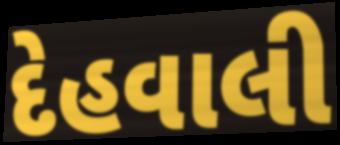
દેહવાલી